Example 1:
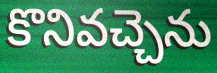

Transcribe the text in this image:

కొనివచ్చెను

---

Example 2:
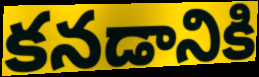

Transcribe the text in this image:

కనడానికి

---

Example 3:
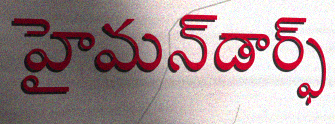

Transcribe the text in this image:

హైమన్‌డార్ఫ్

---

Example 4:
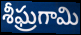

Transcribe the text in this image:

శీఘ్రగామి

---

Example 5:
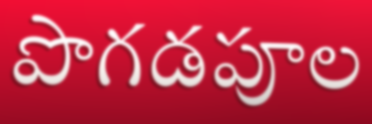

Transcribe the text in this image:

పొగడపూల